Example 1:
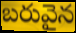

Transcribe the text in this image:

బరువైన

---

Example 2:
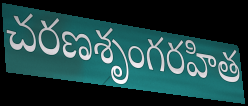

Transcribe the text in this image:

చరణశృంగరహిత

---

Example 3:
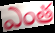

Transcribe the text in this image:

ఎంత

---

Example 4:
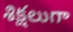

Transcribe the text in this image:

శిక్షలుగా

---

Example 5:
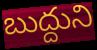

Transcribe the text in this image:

బుద్దుని